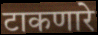
टाकणारे